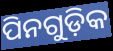
ପିନଗୁଡ଼ିକ